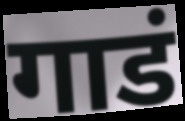
गाडं